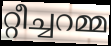
റ്റീച്ചറമ്മ